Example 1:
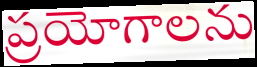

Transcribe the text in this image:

ప్రయోగాలను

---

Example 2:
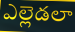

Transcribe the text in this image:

ఎల్లెడలా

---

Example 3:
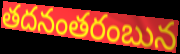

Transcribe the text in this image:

తదనంతరంబున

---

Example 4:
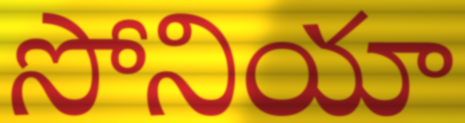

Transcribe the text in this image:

సోనియా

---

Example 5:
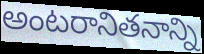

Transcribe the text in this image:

అంటరానితనాన్ని